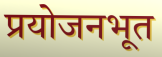
प्रयोजनभूत